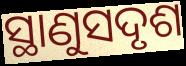
ସ୍ଥାଣୁସଦୃଶ